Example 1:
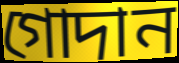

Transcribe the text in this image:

গোদান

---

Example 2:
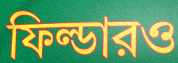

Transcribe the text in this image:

ফিল্ডারও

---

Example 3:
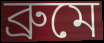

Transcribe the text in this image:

ব্রুমে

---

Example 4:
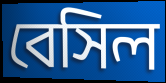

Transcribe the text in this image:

বেসিল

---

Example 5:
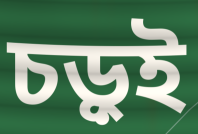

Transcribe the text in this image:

চড়ুই